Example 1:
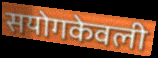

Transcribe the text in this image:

सयोगकेवली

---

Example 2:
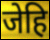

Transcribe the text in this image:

जेहि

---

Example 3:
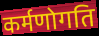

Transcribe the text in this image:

कर्मणोगति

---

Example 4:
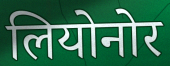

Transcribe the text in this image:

लियोनोर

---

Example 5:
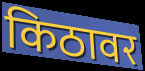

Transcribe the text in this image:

किठावर